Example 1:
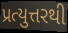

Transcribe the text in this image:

પ્રત્યુત્તરથી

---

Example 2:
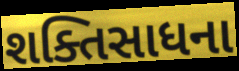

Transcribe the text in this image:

શક્તિસાધના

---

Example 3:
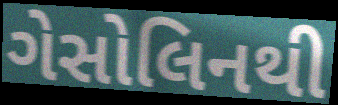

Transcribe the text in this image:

ગેસોલિનથી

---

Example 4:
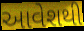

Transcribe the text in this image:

આવેશથી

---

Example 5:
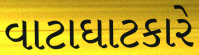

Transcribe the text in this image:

વાટાઘાટકારે